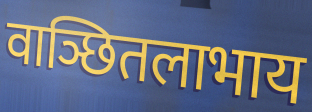
वाञ्छितलाभाय